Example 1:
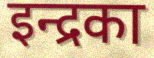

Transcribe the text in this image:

इन्द्रका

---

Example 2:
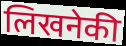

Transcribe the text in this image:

लिखनेकी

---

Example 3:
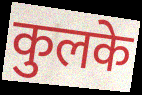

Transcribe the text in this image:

कुलके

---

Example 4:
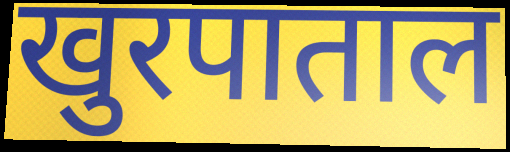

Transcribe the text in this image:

खुरपाताल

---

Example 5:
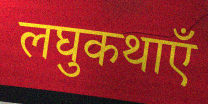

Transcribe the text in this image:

लघुकथाएँ